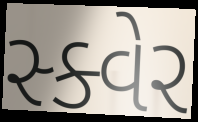
સ્ક્વેર